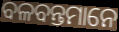
ବଳବନ୍ତମାନେ